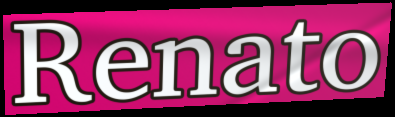
Renato